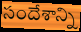
సందేశాన్ని